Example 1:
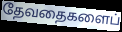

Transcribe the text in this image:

தேவதைகளைப்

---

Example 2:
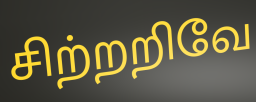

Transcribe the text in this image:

சிற்றறிவே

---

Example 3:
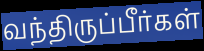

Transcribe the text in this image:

வந்திருப்பீர்கள்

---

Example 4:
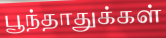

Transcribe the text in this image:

பூந்தாதுக்கள்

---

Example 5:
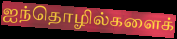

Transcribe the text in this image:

ஐந்தொழில்களைக்